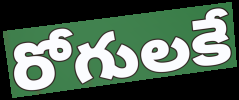
రోగులకే